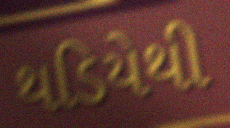
થડિયેથી